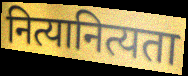
नित्यानित्यता